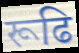
रूढि